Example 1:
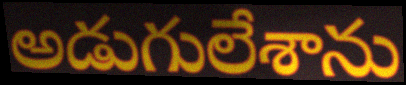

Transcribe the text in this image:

అడుగులేశాను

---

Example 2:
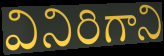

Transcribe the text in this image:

వినిరిగాని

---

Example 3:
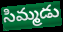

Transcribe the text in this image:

సిమ్మడు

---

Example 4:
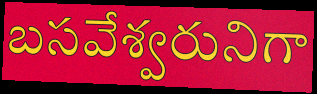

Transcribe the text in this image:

బసవేశ్వరునిగా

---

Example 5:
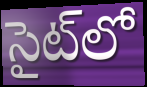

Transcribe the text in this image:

సైట్‌లో